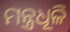
ମନ୍ତ୍ରଧୂଳି